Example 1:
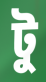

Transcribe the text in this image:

টু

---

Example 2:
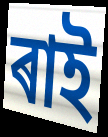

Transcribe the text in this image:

ৰাই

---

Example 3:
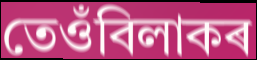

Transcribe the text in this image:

তেওঁবিলাকৰ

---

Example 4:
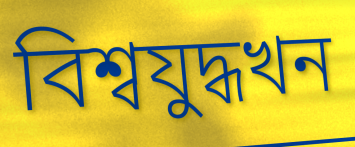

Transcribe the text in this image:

বিশ্বযুদ্ধখন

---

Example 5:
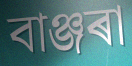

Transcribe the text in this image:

বাঞ্জৰা